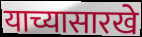
याच्यासारखे